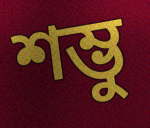
শম্ভু